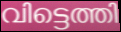
വിട്ടെത്തി